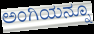
ಅಂಗಿಯನ್ನೂ